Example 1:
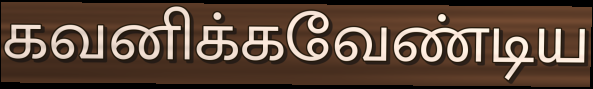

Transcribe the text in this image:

கவனிக்கவேண்டிய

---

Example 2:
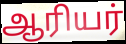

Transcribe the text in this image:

ஆரியர்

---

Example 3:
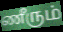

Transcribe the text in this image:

ணீரும்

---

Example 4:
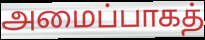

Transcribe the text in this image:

அமைப்பாகத்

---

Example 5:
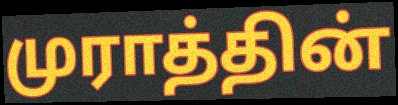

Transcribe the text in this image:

முராத்தின்